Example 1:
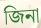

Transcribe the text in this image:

জিনা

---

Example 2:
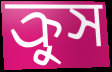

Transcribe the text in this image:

ক্রুস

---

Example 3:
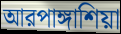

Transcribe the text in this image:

আরপাঙ্গাশিয়া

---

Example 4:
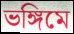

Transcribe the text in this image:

ভঙ্গিমে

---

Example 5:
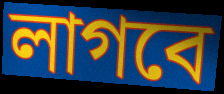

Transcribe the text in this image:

লাগবে